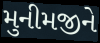
મુનીમજીને